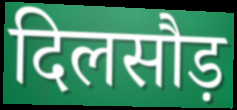
दिलसौड़